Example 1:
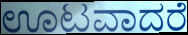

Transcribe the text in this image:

ಊಟವಾದರೆ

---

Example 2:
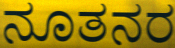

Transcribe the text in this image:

ನೂತನರ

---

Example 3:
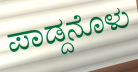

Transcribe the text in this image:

ಪಾಡ್ದನೊಳು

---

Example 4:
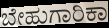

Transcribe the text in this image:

ಬೇಹುಗಾರಿಕಾ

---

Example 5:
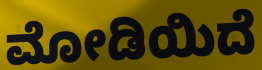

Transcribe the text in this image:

ಮೋಡಿಯಿದೆ